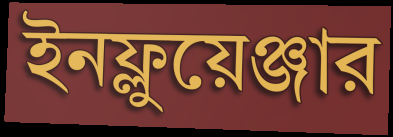
ইনফ্লুয়েঞ্জার